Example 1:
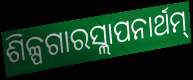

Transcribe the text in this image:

ଶିଳ୍ପଗାରସ୍ଲାପନାର୍ଥମ୍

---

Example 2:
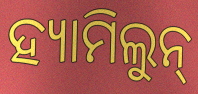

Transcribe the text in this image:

ହ୍ୟାମିଲୁନ୍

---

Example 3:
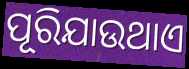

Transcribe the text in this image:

ପୂରିଯାଉଥାଏ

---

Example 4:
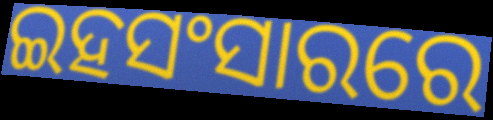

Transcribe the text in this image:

ଇହସଂସାରରେ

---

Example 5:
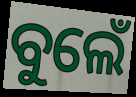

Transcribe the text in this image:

ବୁଲେଁ